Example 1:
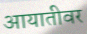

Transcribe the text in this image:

आयातीवर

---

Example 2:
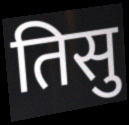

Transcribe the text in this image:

तिसु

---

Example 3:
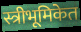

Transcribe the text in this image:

स्त्रीभूमिकेत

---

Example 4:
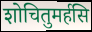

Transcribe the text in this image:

शोचितुमर्हसि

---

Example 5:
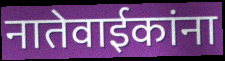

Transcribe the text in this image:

नातेवाईकांना